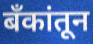
बँकांतून